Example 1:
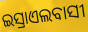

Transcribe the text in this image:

ଇସ୍ରାଏଲବାସୀ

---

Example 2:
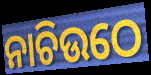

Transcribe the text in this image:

ନାଚିଉଠେ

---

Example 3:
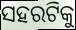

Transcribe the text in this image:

ସହରଟିକୁ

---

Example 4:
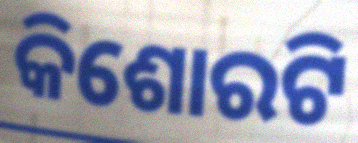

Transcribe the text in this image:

କିଶୋରଟି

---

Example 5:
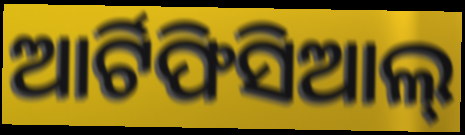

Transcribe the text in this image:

ଆର୍ଟିଫିସିଆଲ୍